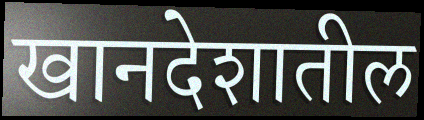
खानदेशातील